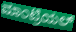
ಮಾಂಟ್ರಿಯಲ್